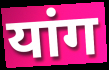
यांग